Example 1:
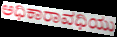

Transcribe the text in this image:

ಅಧಿಕಾರಾವಧಿಯು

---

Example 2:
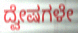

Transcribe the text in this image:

ದ್ವೇಷಗಳೇ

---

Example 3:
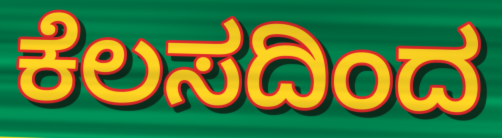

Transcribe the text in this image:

ಕೆಲಸದಿಂದ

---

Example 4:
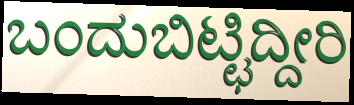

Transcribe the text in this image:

ಬಂದುಬಿಟ್ಟಿದ್ದೀರಿ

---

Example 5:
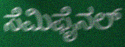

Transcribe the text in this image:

ಸೆಮಿಫೈನಲ್